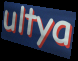
ultya